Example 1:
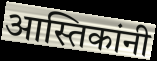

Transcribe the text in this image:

आस्तिकांनी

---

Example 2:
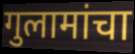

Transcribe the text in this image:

गुलामांचा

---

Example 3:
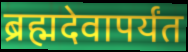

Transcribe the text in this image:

ब्रह्मदेवापर्यंत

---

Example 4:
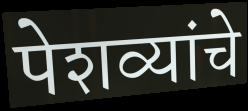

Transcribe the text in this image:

पेशव्यांचे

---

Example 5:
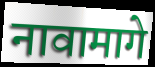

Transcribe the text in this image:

नावामागे